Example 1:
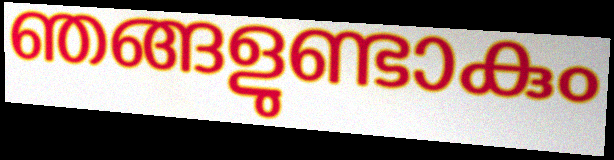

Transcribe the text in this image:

ഞങ്ങളുണ്ടാകും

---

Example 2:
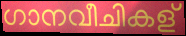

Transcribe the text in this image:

ഗാനവീചികള്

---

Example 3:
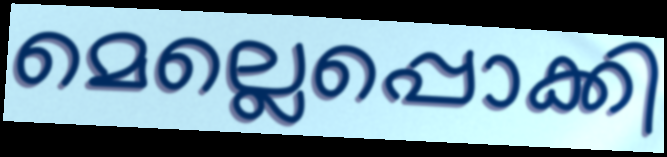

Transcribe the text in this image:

മെല്ലെപ്പൊക്കി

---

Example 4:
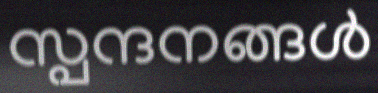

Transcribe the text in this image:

സ്പന്ദനങ്ങൾ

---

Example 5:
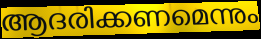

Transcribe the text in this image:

ആദരിക്കണമെന്നും